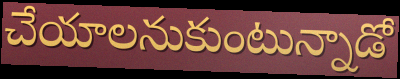
చేయాలనుకుంటున్నాడో